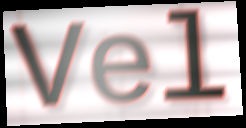
Vel